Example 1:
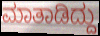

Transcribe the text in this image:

ಮಾತಾಡಿದ್ದು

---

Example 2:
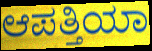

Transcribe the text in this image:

ಆಪತ್ತಿಯಾ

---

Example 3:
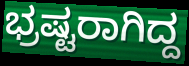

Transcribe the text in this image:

ಭ್ರಷ್ಟರಾಗಿದ್ದ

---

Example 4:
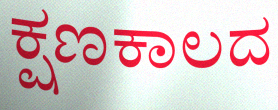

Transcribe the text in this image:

ಕ್ಷಣಕಾಲದ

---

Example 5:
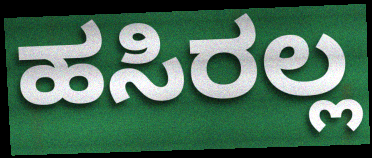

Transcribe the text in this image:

ಹಸಿರಲ್ಲ